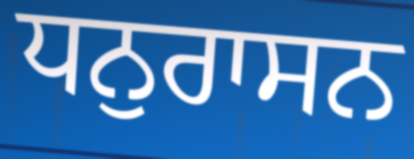
ਧਨੁਰਾਸਨ